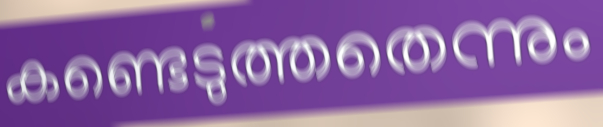
കണ്ടെടുത്തതെന്നും